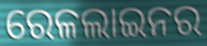
ରେଳଲାଇନର